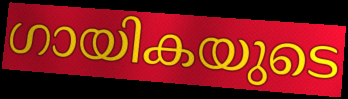
ഗായികയുടെ